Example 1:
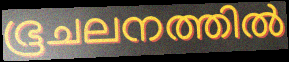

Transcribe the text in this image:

ഭൂചലനത്തിൽ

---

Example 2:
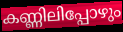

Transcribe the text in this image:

കണ്ണിലിപ്പോഴും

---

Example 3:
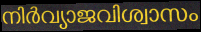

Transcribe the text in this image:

നിർവ്യാജവിശ്വാസം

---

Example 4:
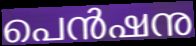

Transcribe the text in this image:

പെൻഷനു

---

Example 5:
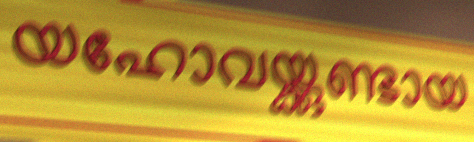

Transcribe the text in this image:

യഹോവയ്ക്കുണ്ടായ